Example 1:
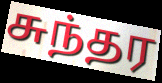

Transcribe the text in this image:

சுந்தர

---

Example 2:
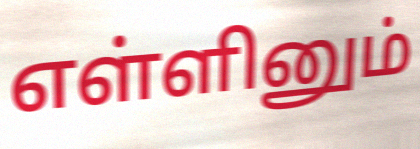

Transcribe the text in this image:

எள்ளினும்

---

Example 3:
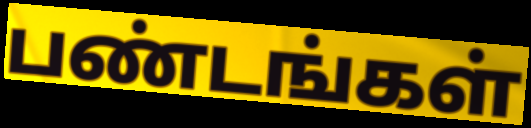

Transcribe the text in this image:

பண்டங்கள்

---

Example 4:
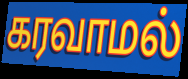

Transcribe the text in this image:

கரவாமல்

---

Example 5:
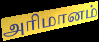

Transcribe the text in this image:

அரிமானம்